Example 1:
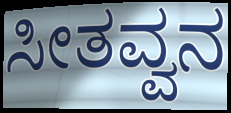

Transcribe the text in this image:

ಸೀತವ್ವನ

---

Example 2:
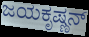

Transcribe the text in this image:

ಜಯಕೃಷ್ಣನ್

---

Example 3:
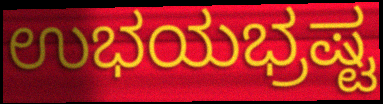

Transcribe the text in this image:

ಉಭಯಭ್ರಷ್ಟ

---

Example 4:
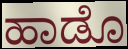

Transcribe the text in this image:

ಹಾಡೊ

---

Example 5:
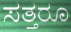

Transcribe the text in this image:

ಸತ್ತರೂ